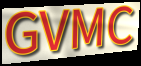
GVMC